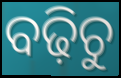
ବଢ଼ିଚୁ